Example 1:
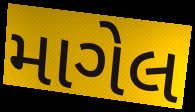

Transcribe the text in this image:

માગેલ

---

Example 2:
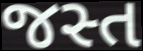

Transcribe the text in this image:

જસ્ત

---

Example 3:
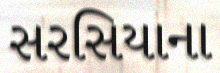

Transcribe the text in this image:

સરસિયાના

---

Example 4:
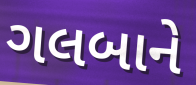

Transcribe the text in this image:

ગલબાને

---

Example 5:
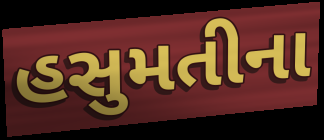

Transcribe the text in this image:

હસુમતીના